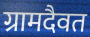
ग्रामदैवत